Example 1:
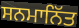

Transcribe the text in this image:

ਸਨਮਾਨਿੱਤ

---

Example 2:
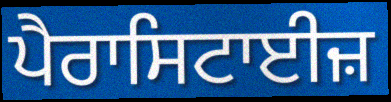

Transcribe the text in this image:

ਪੈਰਾਸਿਟਾਈਜ਼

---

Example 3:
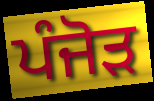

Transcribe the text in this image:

ਪੰਜੋੜ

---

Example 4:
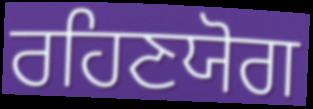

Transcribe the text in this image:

ਰਹਿਣਯੋਗ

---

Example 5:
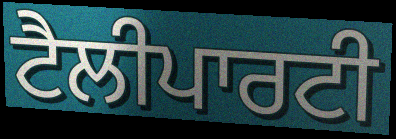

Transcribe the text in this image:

ਟੈਲੀਪਾਰਟੀ